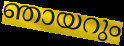
ഞായറും